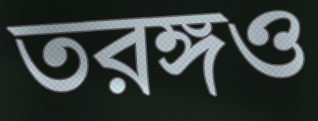
তরঙ্গও